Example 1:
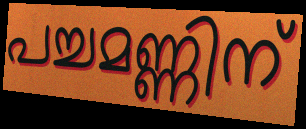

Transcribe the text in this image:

പച്ചമണ്ണിന്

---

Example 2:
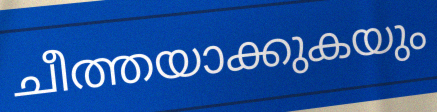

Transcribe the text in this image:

ചീത്തയാക്കുകയും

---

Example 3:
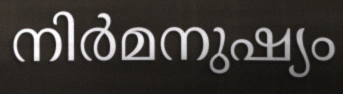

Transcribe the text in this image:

നിർമനുഷ്യം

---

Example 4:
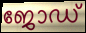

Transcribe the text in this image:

ജോഡ്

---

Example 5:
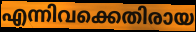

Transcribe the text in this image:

എന്നിവക്കെതിരായ